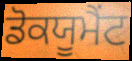
ਡੋਕਯੂਮੈਂਟ